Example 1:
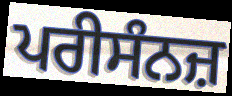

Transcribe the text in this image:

ਪਰੀਸੰਨਜ਼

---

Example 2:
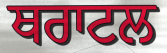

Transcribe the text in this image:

ਥਰਾਟਲ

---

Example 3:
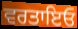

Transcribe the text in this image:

ਵਰਤਾਇਓ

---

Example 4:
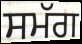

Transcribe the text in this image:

ਸਮੱਗ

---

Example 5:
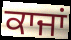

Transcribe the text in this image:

ਕਾਜਾਂ